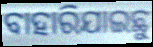
ବାହାରିଯାଇଛୁ